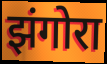
झंगोरा